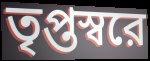
তৃপ্তস্বরে